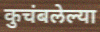
कुचंबलेल्या